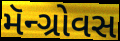
મૅન્ગ્રોવસ